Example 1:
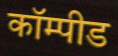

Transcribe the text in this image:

कॉम्पीड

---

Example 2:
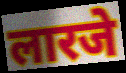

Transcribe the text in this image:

लारजे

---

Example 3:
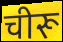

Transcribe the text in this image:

चीरू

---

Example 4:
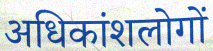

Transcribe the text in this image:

अधिकांशलोगों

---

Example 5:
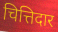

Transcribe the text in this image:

चित्तिदार